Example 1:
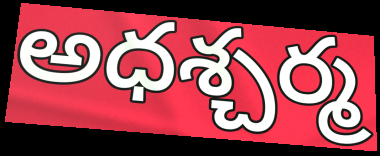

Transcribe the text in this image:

అధశ్చర్మ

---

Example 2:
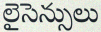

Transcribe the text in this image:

లైసెన్సులు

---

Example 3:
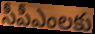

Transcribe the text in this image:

సీపీఎంలకు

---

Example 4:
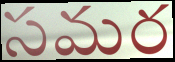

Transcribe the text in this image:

సమర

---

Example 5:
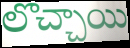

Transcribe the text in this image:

లొచ్చాయి